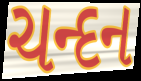
ચન્દન